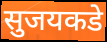
सुजयकडे